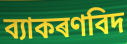
ব্যাকৰণবিদ